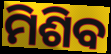
ମିଶିବ